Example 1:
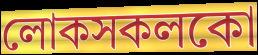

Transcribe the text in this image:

লোকসকলকো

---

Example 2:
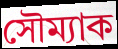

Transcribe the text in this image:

সৌম্যাক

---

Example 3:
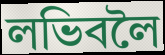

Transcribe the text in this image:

লভিবলৈ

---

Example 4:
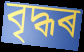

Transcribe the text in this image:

বৃদ্ধৰ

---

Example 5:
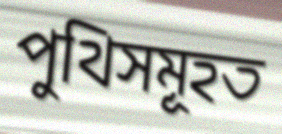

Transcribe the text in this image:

পুথিসমূহত